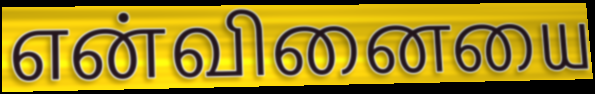
என்வினையை